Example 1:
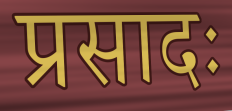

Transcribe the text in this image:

प्रसादः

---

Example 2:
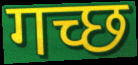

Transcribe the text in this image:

गच्छ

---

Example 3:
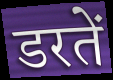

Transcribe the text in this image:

डरतें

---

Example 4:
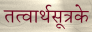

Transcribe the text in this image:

तत्वार्थसूत्रके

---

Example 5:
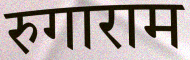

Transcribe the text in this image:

रुगाराम